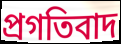
প্রগতিবাদ